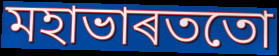
মহাভাৰততো